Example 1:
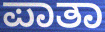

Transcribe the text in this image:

ಪಾತಾ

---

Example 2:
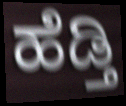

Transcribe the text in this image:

ಹೆಡ್ತಿ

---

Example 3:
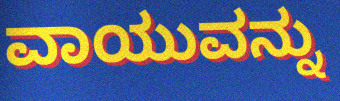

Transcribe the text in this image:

ವಾಯುವನ್ನು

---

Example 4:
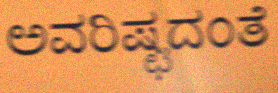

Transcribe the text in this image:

ಅವರಿಷ್ಟದಂತೆ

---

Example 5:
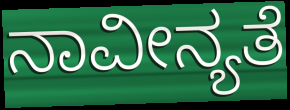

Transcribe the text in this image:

ನಾವೀನ್ಯತೆ